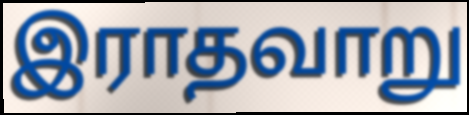
இராதவாறு